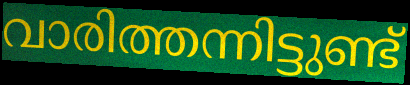
വാരിത്തന്നിട്ടുണ്ട്